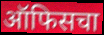
ऑफिसचा